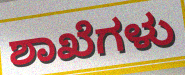
ಶಾಖೆಗಳು